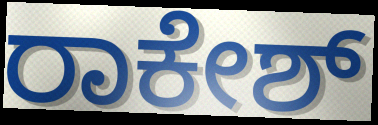
ರಾಕೇಶ್